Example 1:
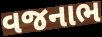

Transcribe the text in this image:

વજનાભ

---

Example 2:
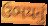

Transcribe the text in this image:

ઉભયનું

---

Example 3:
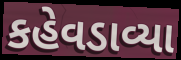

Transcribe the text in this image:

કહેવડાવ્યા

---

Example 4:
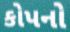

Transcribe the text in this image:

કોપનો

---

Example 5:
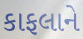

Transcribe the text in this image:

કાફલાને